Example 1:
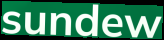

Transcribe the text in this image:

sundew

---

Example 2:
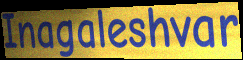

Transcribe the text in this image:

Inagaleshvar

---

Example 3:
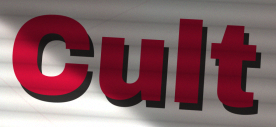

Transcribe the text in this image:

Cult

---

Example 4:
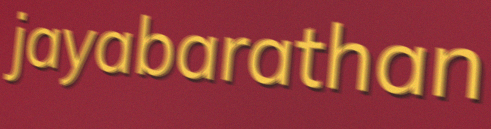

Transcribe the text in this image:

jayabarathan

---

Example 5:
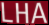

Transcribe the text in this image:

LHA